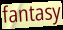
fantasy